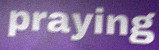
praying